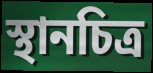
স্থানচিত্র